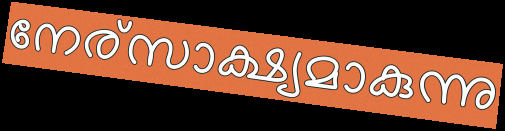
നേര്സാക്ഷ്യമാകുന്നു